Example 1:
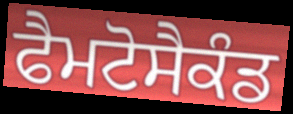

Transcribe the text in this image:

ਫੈਮਟੋਸੈਕੰਡ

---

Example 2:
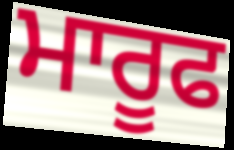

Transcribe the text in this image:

ਮਾਰੂਫ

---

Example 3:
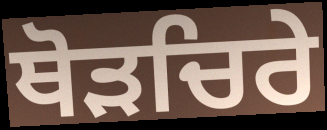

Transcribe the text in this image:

ਥੋੜਚਿਰੇ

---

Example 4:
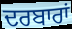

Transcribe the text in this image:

ਦਰਬਾਰਾਂ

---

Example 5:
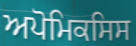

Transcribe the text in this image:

ਅਪੋਮਿਕਸਿਸ